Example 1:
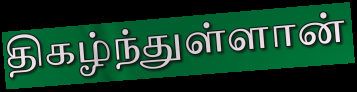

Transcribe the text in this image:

திகழ்ந்துள்ளான்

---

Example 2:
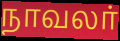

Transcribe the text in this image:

நாவலர்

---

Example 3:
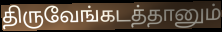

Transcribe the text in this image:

திருவேங்கடத்தானும்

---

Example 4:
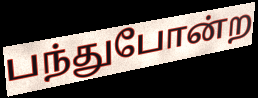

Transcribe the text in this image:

பந்துபோன்ற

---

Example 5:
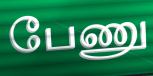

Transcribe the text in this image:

பேணு